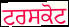
ਟਰਸਕੋਟ